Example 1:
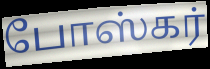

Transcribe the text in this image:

போஸ்கர்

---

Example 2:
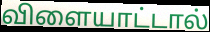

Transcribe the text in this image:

விளையாட்டால்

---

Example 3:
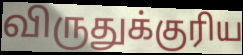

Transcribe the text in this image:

விருதுக்குரிய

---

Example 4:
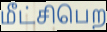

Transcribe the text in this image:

மீட்சிபெற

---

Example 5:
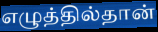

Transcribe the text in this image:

எழுத்தில்தான்